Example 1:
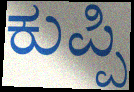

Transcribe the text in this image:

ಕುಪ್ಪಿ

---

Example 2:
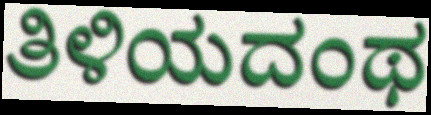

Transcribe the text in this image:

ತಿಳಿಯದಂಥ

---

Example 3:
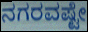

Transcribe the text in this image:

ನಗರವಷ್ಟೇ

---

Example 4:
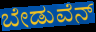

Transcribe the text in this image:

ಬೇಡುವೆನ್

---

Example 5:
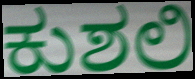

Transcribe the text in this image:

ಕುಶಲಿ